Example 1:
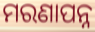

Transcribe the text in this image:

ମରଣାପନ୍ନ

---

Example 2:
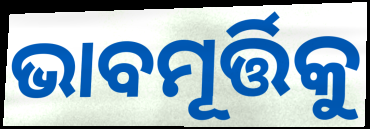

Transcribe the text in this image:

ଭାବମୂର୍ତ୍ତିକୁ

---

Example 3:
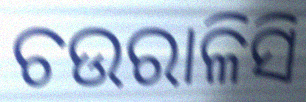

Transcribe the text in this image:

ଚଉରାଳିସି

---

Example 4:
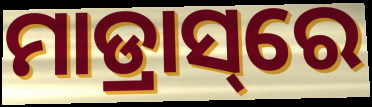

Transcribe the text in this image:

ମାଡ୍ରାସ୍‌ରେ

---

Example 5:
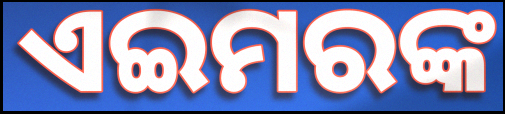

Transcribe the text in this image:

ଏଇମରଙ୍କ